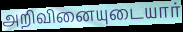
அறிவினையுடையார்